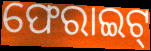
ଫେରାଇଟ୍